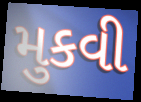
મુકવી